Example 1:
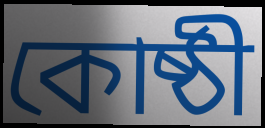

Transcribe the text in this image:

কোষ্ঠী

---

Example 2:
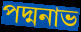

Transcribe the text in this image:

পদ্মনাভ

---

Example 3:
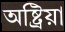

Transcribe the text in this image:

অষ্ট্রিয়া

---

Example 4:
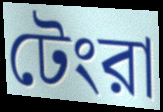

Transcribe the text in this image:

টেংরা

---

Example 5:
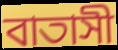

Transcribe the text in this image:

বাতাসী